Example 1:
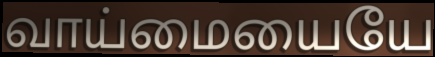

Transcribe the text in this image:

வாய்மையையே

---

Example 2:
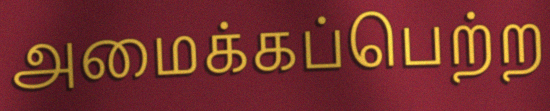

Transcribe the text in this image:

அமைக்கப்பெற்ற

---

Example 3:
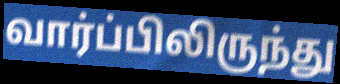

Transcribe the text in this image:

வார்ப்பிலிருந்து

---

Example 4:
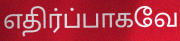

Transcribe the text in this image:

எதிர்ப்பாகவே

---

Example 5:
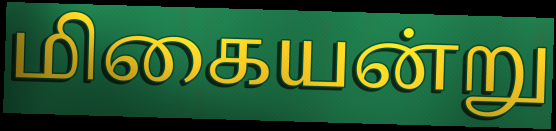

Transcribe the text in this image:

மிகையன்று